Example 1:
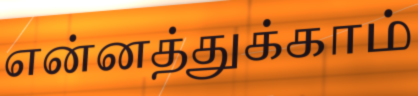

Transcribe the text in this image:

என்னத்துக்காம்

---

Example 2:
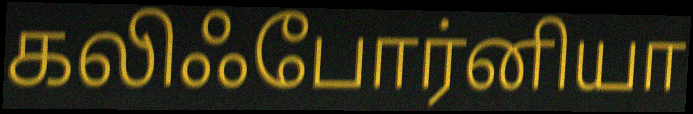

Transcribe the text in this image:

கலிஃபோர்னியா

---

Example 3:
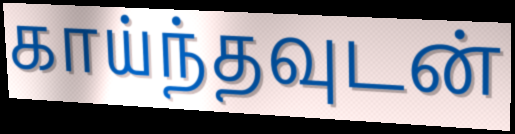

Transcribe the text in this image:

காய்ந்தவுடன்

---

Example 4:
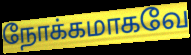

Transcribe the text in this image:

நோக்கமாகவே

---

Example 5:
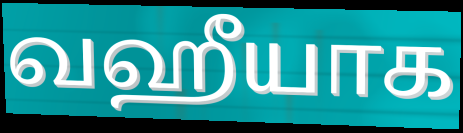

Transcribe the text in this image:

வஹீயாக